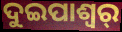
ଦୁଇପାଶ୍ୱର୍